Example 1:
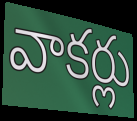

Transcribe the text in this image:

వాకర్లు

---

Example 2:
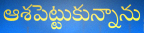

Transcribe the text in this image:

ఆశపెట్టుకున్నాను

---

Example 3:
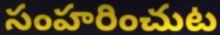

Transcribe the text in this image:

సంహరించుట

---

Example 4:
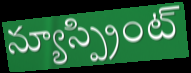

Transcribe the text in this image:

న్యూస్ప్రింట్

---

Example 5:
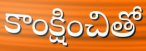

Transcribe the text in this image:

కాంక్షించితో